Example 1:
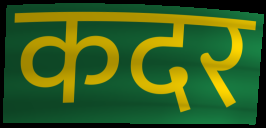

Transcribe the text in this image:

कदर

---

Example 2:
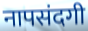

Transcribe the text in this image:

नापसंदगी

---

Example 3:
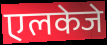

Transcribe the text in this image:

एलकेजे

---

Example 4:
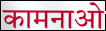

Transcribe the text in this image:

कामनाओ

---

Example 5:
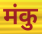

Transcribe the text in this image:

मंकु